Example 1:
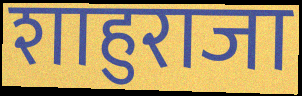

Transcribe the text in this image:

शाहुराजा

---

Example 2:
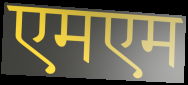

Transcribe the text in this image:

एमएम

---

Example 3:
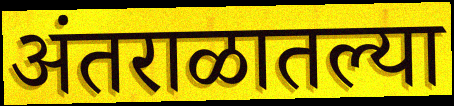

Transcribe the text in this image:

अंतराळातल्या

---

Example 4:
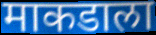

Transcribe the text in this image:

माकडाला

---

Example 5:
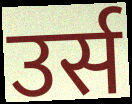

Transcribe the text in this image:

उर्स